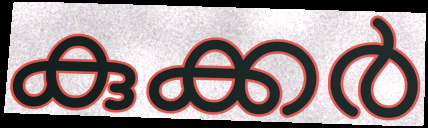
കുക്കർ